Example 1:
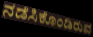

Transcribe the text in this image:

ನಡೆಸಿಕೊಂಡಿರುವ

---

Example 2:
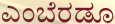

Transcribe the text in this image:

ಎಂಬೆರಡೂ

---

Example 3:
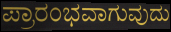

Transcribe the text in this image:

ಪ್ರಾರಂಭವಾಗುವುದು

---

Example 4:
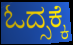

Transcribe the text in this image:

ಓದ್ಸಕ್ಕೆ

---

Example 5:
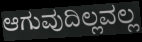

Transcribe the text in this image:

ಆಗುವುದಿಲ್ಲವಲ್ಲ